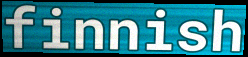
finnish